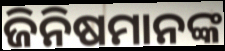
ଜିନିଷମାନଙ୍କ